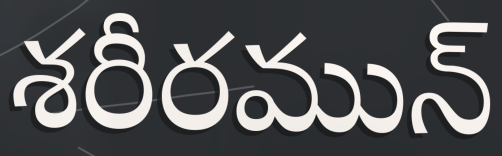
శరీరమున్